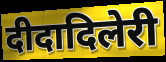
दीदादिलेरी